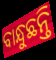
ବାନ୍ଧୁଛନ୍ତି